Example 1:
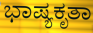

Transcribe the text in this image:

ಭಾಷ್ಯಕೃತಾ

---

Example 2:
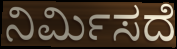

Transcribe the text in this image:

ನಿರ್ಮಿಸದೆ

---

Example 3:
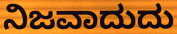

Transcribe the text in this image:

ನಿಜವಾದುದು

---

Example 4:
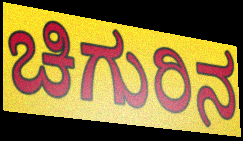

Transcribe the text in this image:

ಚಿಗುರಿನ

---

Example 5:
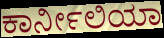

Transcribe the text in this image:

ಕಾರ್ನೀಲಿಯಾ